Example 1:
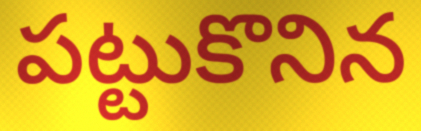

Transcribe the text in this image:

పట్టుకొనిన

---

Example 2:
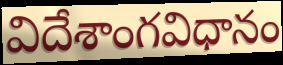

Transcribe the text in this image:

విదేశాంగవిధానం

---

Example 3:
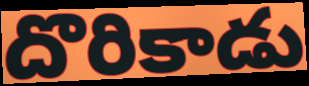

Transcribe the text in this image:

దొరికాడు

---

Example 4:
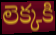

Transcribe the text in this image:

లెక్కకి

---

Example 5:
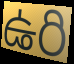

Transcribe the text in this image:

ఉరి